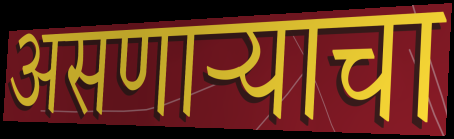
असणाऱ्याचा